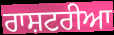
ਰਾਸ਼ਟਰੀਆ